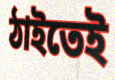
ঠাইতেই